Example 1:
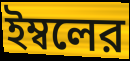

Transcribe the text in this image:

ইম্বলের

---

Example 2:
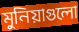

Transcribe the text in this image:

মুনিয়াগুলো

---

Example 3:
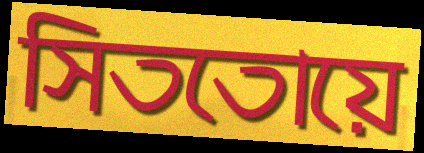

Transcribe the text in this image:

সিততোয়ে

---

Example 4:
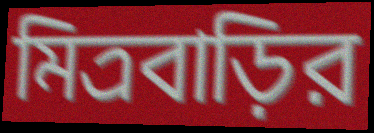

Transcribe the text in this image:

মিত্রবাড়ির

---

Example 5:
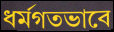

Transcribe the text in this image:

ধর্মগতভাবে